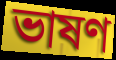
ভাষণ